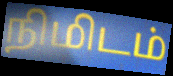
நிமிடம்